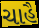
ચાહૈ